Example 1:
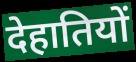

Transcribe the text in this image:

देहातियों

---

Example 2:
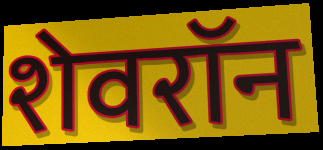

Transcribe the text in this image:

शेवरॉन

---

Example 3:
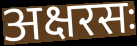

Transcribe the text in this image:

अक्षरसः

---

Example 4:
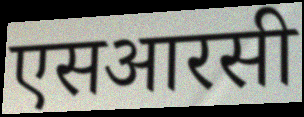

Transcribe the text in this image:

एसआरसी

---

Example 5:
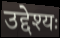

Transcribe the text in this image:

उद्देश्यः